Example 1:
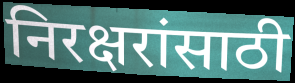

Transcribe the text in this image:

निरक्षरांसाठी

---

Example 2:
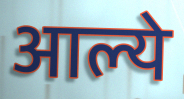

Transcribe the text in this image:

आल्ये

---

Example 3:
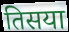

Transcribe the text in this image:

तिसया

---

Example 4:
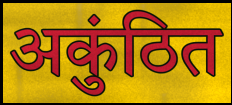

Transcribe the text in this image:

अकुंठित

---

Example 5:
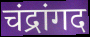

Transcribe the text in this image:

चंद्रांगद